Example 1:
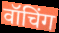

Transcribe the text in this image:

वॉचिंग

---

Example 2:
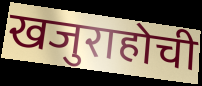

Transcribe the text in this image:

खजुराहोची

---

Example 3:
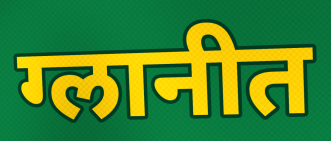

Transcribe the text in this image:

ग्लानीत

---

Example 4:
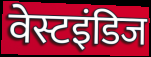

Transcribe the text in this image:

वेस्टइंडिज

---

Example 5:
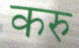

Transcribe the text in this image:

करु